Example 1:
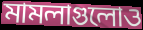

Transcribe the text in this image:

মামলাগুলোও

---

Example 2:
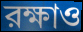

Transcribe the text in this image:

রক্ষাও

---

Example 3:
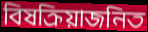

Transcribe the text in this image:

বিষক্রিয়াজনিত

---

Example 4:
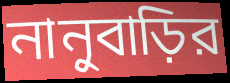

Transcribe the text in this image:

নানুবাড়ির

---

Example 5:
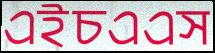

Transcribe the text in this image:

এইচএএস